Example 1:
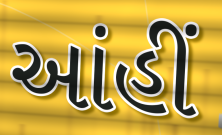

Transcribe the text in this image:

આંહીં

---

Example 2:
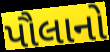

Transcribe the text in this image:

પૌલાનો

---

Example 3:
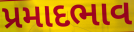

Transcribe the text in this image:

પ્રમાદભાવ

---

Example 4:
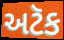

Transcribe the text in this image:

અટૅક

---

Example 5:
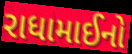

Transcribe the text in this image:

રાધામાઈનો